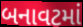
બનાવટમાં